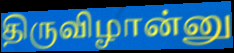
திருவிழான்னு